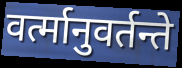
वर्त्मानुवर्तन्ते